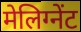
मेलिग्नेंट